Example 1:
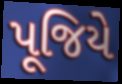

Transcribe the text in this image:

પૂજિયે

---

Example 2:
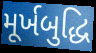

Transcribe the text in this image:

મૂર્ખબુદ્ધિ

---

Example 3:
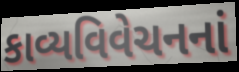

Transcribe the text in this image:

કાવ્યવિવેચનનાં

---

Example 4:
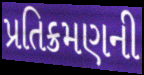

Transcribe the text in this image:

પ્રતિક્રમણની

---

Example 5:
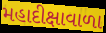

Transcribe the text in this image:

મહાદીક્ષાવાળા